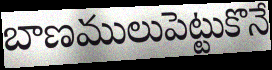
బాణములుపెట్టుకొనే